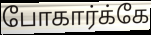
போகார்க்கே